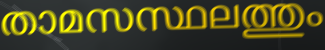
താമസസ്ഥലത്തും